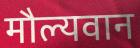
मौल्यवान